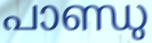
പാണ്ഡു